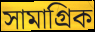
সামাগ্রিক